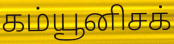
கம்யூனிசக்